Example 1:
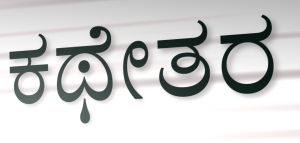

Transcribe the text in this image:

ಕಥೇತರ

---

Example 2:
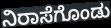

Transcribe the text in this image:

ನಿರಾಸೆಗೊಂಡು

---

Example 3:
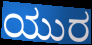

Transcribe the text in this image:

ಯುರ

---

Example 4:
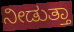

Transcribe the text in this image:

ನೀಡುತ್ತಾ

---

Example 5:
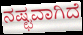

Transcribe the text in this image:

ನಷ್ಟವಾಗಿದೆ